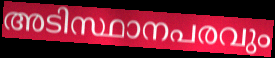
അടിസ്ഥാനപരവും